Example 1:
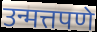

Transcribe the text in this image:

उन्मत्तपणे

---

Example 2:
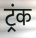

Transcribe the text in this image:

ट्रंक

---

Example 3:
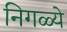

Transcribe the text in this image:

निगळ्ये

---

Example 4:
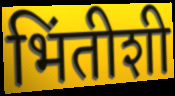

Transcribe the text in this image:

भिंतीशी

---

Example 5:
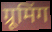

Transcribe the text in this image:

ग्रूमिंग